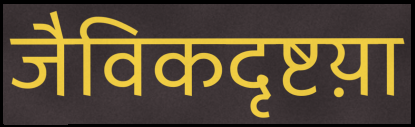
जैविकदृष्टय़ा